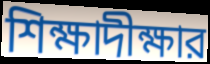
শিক্ষাদীক্ষার